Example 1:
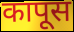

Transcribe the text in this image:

कापूस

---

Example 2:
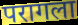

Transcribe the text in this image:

परागला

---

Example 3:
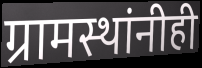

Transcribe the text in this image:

ग्रामस्थांनीही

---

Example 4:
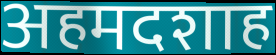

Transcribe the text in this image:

अहमदशाह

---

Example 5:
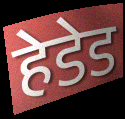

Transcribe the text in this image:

हेडेड